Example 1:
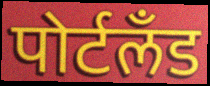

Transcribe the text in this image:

पोर्टलॅंड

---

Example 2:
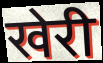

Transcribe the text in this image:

खेरी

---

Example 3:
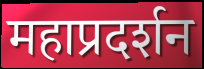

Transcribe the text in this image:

महाप्रदर्शन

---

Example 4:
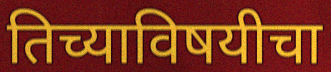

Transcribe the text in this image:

तिच्याविषयीचा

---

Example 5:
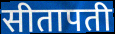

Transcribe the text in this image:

सीतापती